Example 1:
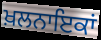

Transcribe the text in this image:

ਖ਼ਲਨਾਇਕਾਂ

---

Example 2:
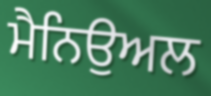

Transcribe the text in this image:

ਮੈਨਿਉਅਲ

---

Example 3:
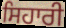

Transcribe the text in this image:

ਸਿਹਾਰੀ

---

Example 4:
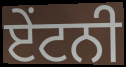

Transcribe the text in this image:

ਏਂਟਨੀ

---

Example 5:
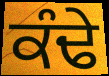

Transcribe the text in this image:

ਕੰਢੇ